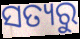
ସତ୍ୟରୁ